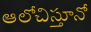
ఆలోచిస్తూనో